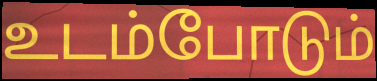
உடம்போடும்